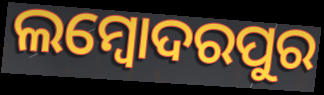
ଲମ୍ବୋଦରପୁର